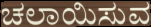
ಚಲಾಯಿಸುವ